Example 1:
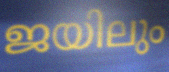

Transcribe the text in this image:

ജയിലും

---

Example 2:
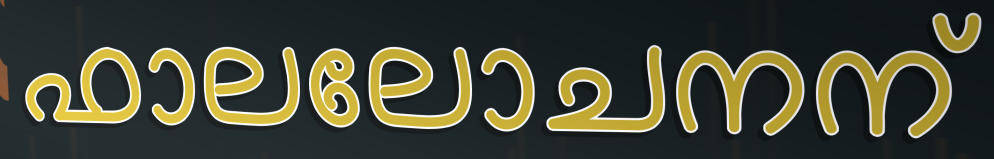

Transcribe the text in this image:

ഫാലലോചനന്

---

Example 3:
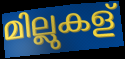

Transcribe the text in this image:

മില്ലുകള്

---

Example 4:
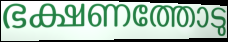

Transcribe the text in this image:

ഭക്ഷണത്തോടു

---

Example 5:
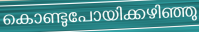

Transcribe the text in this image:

കൊണ്ടുപോയിക്കഴിഞ്ഞു